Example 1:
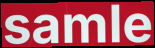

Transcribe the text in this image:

samle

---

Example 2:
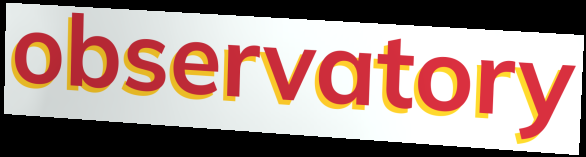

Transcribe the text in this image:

observatory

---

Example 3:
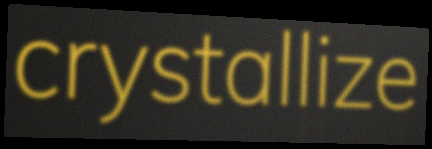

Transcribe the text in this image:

crystallize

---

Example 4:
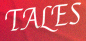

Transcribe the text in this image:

TALES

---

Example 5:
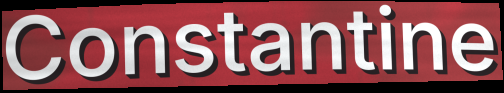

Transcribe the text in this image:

Constantine